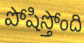
పోషిస్తోంది